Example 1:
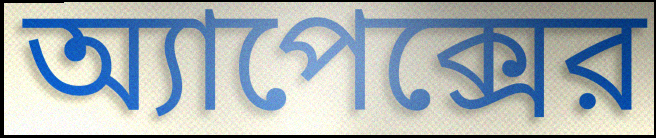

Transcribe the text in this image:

অ্যাপেক্সের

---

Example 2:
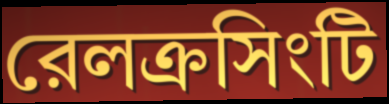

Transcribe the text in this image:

রেলক্রসিংটি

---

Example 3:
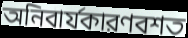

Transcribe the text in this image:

অনিবার্যকারণবশত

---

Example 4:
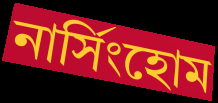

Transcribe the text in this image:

নার্সিংহোম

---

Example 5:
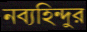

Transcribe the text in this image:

নব্যহিন্দুর